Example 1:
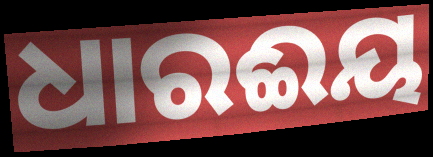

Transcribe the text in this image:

ଧାରଈୟ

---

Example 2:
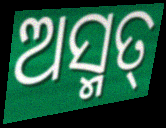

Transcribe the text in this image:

ଅସ୍ମତ୍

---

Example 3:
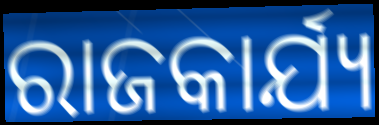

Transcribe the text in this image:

ରାଜକାର୍ଯ୍ୟ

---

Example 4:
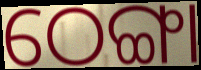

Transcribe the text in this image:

ଠେଙ୍ଗା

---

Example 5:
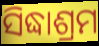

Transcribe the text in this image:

ସିଦ୍ଧାଶ୍ରମ